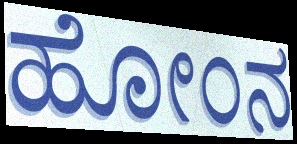
ಹೋಂನ